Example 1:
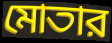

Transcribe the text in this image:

মোতার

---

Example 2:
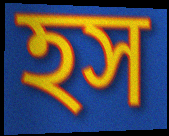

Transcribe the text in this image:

হস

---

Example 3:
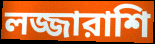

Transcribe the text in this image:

লজ্জারাশি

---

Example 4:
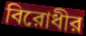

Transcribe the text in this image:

বিরোধীর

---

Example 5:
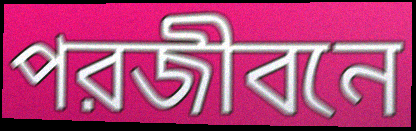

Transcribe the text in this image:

পরজীবনে